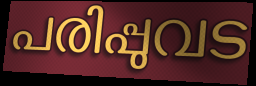
പരിപ്പുവട